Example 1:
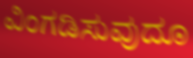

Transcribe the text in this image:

ವಿಂಗಡಿಸುವುದೂ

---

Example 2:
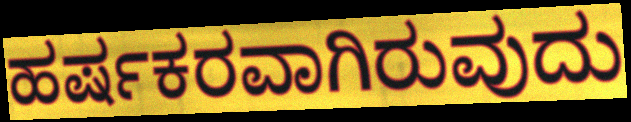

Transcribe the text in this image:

ಹರ್ಷಕರವಾಗಿರುವುದು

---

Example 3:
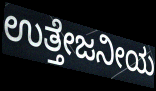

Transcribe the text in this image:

ಉತ್ತೇಜನೀಯ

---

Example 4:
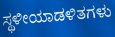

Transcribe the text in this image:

ಸ್ಥಳೀಯಾಡಳಿತಗಳು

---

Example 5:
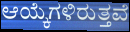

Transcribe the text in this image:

ಆಯ್ಕೆಗಳಿರುತ್ತವೆ